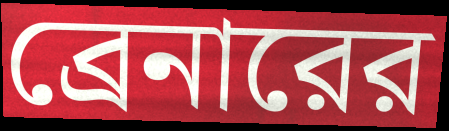
ব্রেনারের